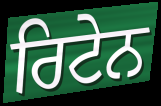
ਰਿਟੇਨ